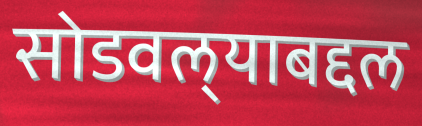
सोडवल्याबद्दल